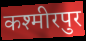
कश्मीरपुर